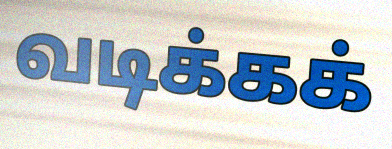
வடிக்கக்